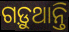
ଗଡ଼ୁଥାନ୍ତି